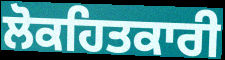
ਲੋਕਹਿਤਕਾਰੀ